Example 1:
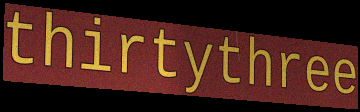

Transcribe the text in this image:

thirtythree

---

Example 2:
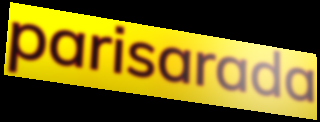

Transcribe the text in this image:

parisarada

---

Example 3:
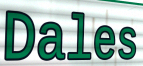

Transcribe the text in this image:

Dales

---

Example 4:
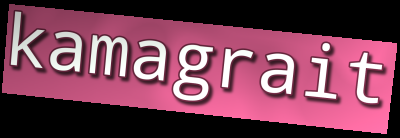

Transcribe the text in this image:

kamagrait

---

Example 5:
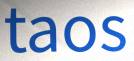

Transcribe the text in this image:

taos